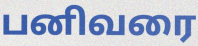
பனிவரை